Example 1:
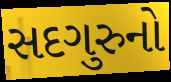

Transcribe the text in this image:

સદગુરુનો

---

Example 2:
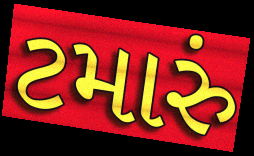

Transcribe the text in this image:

ટમારું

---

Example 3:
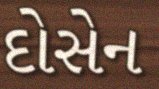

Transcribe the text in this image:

દોસેન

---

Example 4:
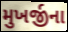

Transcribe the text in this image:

મુખર્જીના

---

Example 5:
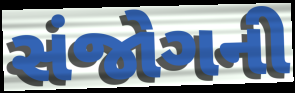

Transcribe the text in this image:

સંજોગની